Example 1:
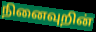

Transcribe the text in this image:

நினைவுறின்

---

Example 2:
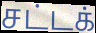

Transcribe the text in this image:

சட்டக்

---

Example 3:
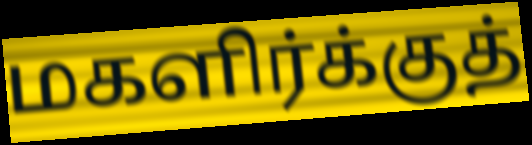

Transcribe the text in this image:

மகளிர்க்குத்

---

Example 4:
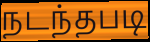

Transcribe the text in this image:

நடந்தபடி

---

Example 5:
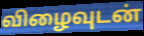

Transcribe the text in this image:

விழைவுடன்